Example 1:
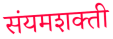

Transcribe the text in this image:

संयमशक्ती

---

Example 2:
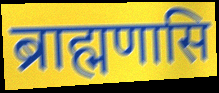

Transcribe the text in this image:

ब्राह्मणासि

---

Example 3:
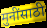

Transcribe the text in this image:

मुनींसाठी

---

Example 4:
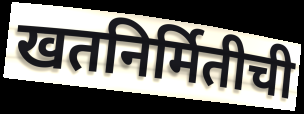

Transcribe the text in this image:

खतनिर्मितीची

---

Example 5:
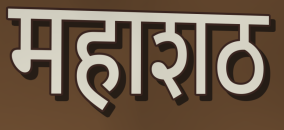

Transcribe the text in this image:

महाशठ